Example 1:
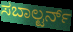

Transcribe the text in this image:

ಸಬಾಲ್ಟರ್ನ್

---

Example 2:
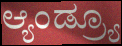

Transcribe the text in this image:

ಆ್ಯಂಡ್ರ್ಯೂ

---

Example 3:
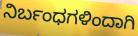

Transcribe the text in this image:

ನಿರ್ಬಂಧಗಳಿಂದಾಗಿ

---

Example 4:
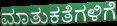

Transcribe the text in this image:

ಮಾತುಕತೆಗಳಿಗೆ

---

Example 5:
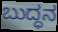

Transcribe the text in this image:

ಬುದ್ಧನ